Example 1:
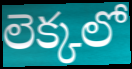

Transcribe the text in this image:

లెక్కలో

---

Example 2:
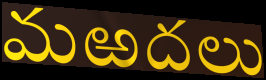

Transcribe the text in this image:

మఱదలు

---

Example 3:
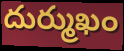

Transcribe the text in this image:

దుర్ముఖం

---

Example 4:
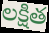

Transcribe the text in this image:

లక్షిత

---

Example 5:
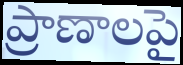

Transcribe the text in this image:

ప్రాణాలపై